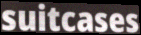
suitcases